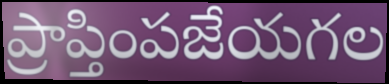
ప్రాప్తింపజేయగల